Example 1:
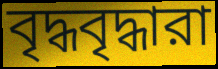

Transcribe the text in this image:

বৃদ্ধবৃদ্ধারা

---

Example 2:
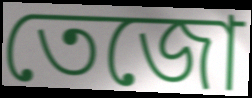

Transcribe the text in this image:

তেজো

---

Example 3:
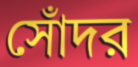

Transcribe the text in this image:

সোঁদর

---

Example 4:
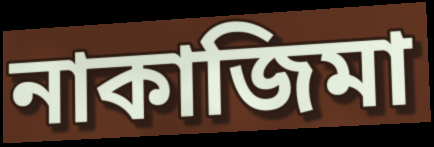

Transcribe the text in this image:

নাকাজিমা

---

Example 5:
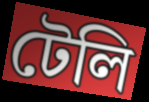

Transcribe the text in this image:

টেলি